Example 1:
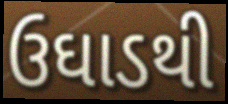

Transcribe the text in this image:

ઉઘાડથી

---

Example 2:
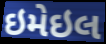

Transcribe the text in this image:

ઇમેઇલ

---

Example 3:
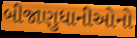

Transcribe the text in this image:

બીજાણુધાનીઓનો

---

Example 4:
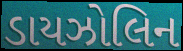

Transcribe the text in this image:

ડાયઝોલિન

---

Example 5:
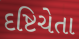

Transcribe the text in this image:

દષ્ટિચેતા